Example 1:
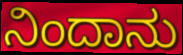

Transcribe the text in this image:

ನಿಂದಾನು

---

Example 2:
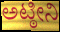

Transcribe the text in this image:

ಅಟ್ಠೀನಿ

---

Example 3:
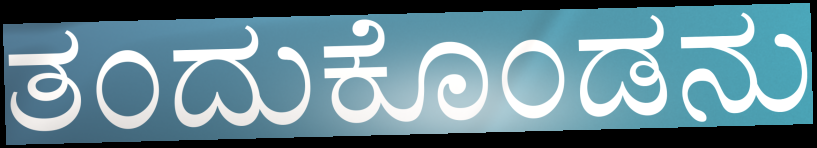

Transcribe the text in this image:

ತಂದುಕೊಂಡನು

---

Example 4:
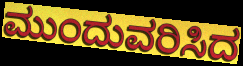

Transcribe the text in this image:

ಮುಂದುವರಿಸಿದ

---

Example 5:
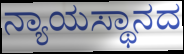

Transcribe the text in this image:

ನ್ಯಾಯಸ್ಥಾನದ